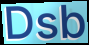
Dsb